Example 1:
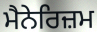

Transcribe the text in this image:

ਮੈਨੇਰਿਜ਼ਮ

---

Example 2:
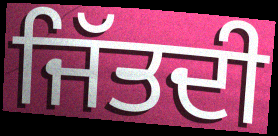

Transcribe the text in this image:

ਜਿੱਤਦੀ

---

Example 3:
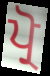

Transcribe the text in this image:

ਪ੍ਰੋ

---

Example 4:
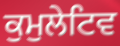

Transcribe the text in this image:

ਕੁਮੁਲੇਟਿਵ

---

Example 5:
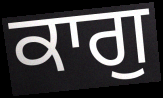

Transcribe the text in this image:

ਕਾਗੁ